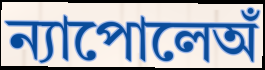
ন্যাপোলেঅঁ